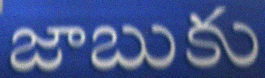
జాబుకు